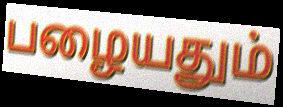
பழையதும்